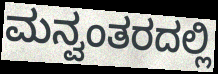
ಮನ್ವಂತರದಲ್ಲಿ